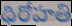
ధిరోహతి